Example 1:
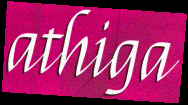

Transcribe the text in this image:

athiga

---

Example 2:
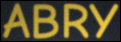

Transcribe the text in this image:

ABRY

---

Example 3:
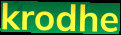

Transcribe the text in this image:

krodhe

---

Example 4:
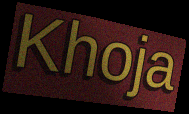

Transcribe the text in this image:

Khoja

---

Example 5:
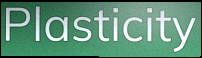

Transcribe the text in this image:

Plasticity